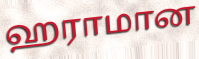
ஹராமான